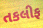
તકલીફ